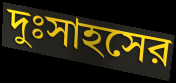
দুঃসাহসের